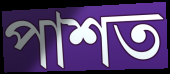
পাশত